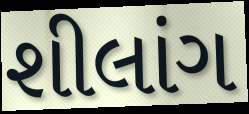
શીલાંગ